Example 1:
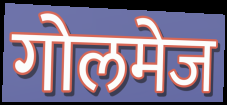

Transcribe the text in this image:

गोलमेज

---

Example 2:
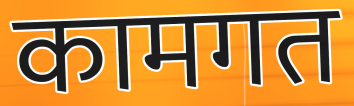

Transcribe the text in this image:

कामगत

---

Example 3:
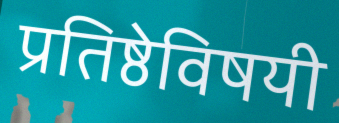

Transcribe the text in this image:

प्रतिष्ठेविषयी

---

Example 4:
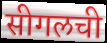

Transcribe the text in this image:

सीगलची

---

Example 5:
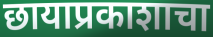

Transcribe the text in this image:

छायाप्रकाशाचा